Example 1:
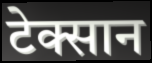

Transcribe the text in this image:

टेक्सान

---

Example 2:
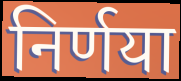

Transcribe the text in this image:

निर्णया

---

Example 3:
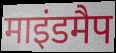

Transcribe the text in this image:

माइंडमैप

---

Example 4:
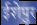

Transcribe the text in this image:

ईशेपुर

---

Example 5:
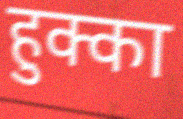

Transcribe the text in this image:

हुक्का